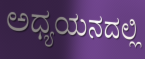
ಅಧ್ಯಯನದಲ್ಲಿ